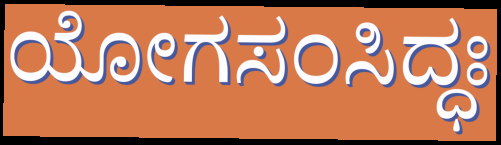
ಯೋಗಸಂಸಿದ್ಧಃ